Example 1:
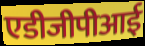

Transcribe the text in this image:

एडीजीपीआई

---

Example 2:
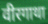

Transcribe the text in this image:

वीरगाथा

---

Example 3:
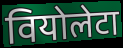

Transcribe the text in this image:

वियोलेटा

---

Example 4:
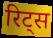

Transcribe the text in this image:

रिट्स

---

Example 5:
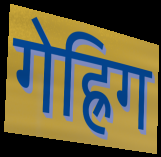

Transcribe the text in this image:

गेह्रिग